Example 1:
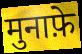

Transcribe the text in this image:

मुनाफ़े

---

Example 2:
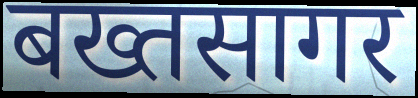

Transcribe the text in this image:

बख्तसागर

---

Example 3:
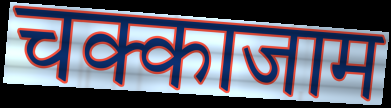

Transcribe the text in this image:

चक्काजाम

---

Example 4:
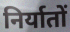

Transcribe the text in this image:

निर्यातों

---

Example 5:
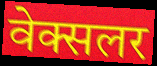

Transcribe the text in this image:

वेक्सलर